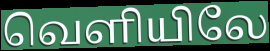
வெளியிலே